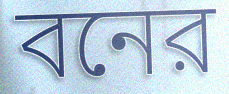
বনের